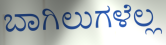
ಬಾಗಿಲುಗಳೆಲ್ಲ